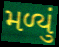
મળ્યું